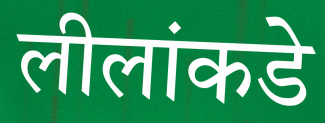
लीलांकडे